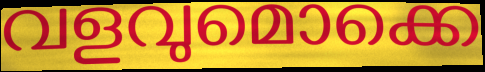
വളവുമൊക്കെ